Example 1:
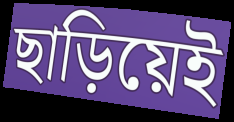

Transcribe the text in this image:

ছাড়িয়েই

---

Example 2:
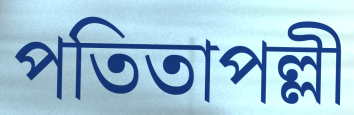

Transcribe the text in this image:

পতিতাপল্লী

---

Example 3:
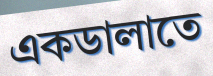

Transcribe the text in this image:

একডালাতে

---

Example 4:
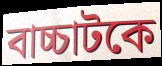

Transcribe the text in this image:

বাচ্চাটকে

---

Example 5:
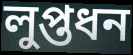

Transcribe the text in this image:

লুপ্তধন